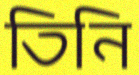
তিনি